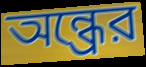
অন্ধ্রের